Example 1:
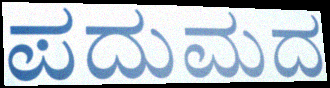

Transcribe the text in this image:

ಪದುಮದ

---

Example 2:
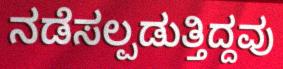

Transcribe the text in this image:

ನಡೆಸಲ್ಪಡುತ್ತಿದ್ದವು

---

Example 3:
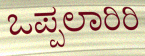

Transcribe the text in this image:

ಒಪ್ಪಲಾರಿರಿ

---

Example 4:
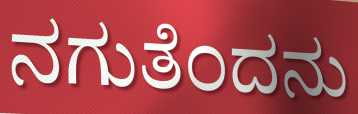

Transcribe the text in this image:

ನಗುತೆಂದನು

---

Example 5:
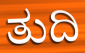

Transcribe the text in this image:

ತುದಿ